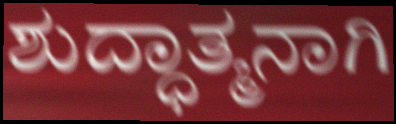
ಶುದ್ಧಾತ್ಮನಾಗಿ